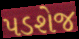
પડશેજ